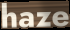
haze